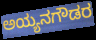
ಅಯ್ಯನಗೌಡರ